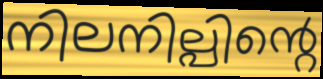
നിലനില്പിന്റെ